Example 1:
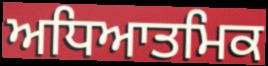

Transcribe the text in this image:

ਅਧਿਆਤਮਿਕ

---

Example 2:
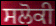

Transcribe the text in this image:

ਸਲੋਕੀ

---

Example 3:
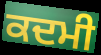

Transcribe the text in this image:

ਕਦਮੀ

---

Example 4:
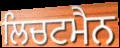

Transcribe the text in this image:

ਲਿਚਟਮੈਨ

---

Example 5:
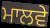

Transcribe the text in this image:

ਮਾਲਵੇ